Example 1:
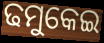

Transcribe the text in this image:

ଢମୁକେଇ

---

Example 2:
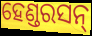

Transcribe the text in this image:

ହେଣ୍ଡରସନ୍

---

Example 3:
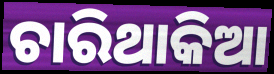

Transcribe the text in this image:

ଚାରିଥାକିଆ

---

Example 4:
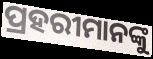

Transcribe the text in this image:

ପ୍ରହରୀମାନଙ୍କୁ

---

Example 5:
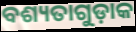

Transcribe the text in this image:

ବଶ୍ୟତାଗୁଡ଼ାକ